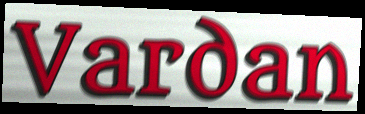
Vardan